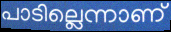
പാടില്ലെന്നാണ്